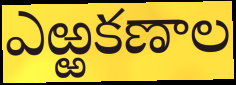
ఎఱ్ఱకణాల